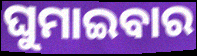
ଘୁମାଇବାର